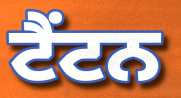
ਟੈਂਟਨ